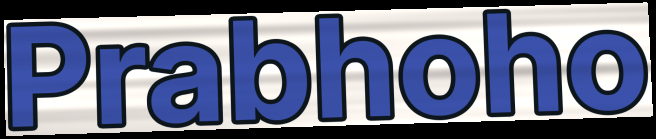
Prabhoho